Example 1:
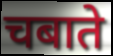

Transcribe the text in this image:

चबाते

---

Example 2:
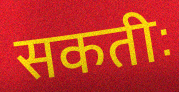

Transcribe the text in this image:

सकतीः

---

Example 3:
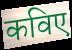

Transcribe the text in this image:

कविए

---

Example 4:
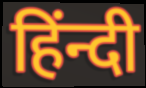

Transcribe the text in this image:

हिंन्दी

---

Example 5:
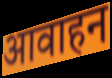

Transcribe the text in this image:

आवाहन